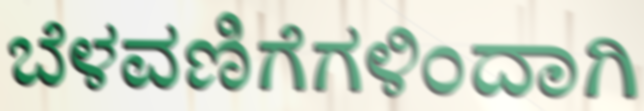
ಬೆಳವಣಿಗೆಗಳಿಂದಾಗಿ